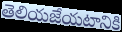
తెలియజేయటానికి